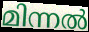
മിന്നൽ